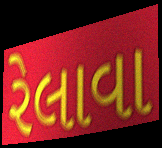
રેલાવા